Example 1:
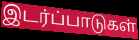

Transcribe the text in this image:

இடர்ப்பாடுகள்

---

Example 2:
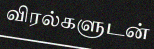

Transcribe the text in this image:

விரல்களுடன்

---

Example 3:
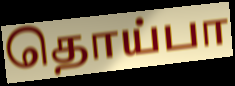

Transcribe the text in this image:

தொய்பா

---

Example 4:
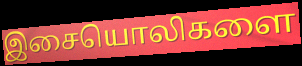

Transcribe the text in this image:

இசையொலிகளை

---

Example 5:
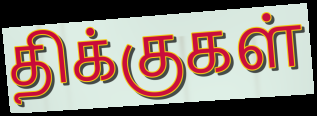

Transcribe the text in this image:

திக்குகள்